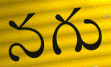
నగు